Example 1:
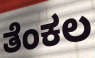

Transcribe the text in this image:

ತೆಂಕಲ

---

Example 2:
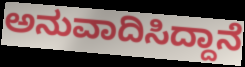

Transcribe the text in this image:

ಅನುವಾದಿಸಿದ್ದಾನೆ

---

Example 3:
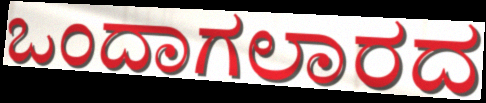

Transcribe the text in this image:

ಒಂದಾಗಲಾರದ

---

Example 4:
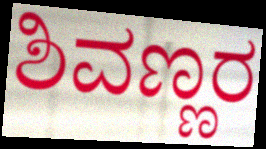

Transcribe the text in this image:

ಶಿವಣ್ಣರ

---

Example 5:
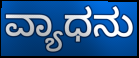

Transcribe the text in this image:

ವ್ಯಾಧನು